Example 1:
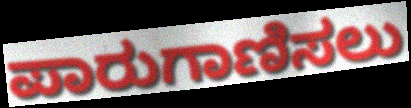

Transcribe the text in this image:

ಪಾರುಗಾಣಿಸಲು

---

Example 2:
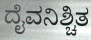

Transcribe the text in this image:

ದೈವನಿಶ್ಚಿತ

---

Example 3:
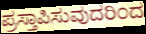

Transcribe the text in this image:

ಪ್ರಸ್ತಾಪಿಸುವುದರಿಂದ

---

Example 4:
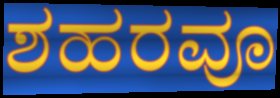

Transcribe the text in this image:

ಶಹರವೂ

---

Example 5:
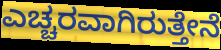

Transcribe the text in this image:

ಎಚ್ಚರವಾಗಿರುತ್ತೇನೆ